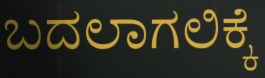
ಬದಲಾಗಲಿಕ್ಕೆ